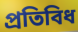
প্ৰতিবিধ